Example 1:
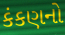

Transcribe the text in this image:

કંકણનો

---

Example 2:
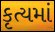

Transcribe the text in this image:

કૃત્યમાં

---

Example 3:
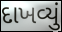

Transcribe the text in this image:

દાખવ્યું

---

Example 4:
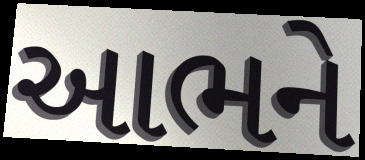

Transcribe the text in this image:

આભને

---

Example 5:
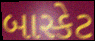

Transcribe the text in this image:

બાસ્કેટ